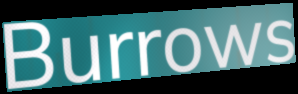
Burrows